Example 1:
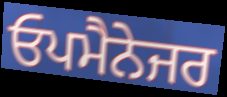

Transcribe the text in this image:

ਓਪਮੈਨੇਜਰ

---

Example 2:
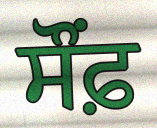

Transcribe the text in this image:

ਸੌਂਫ਼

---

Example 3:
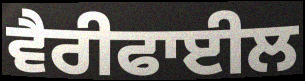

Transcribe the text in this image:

ਵੈਰੀਫਾਈਲ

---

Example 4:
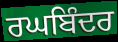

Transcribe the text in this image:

ਰਘਬਿੰਦਰ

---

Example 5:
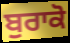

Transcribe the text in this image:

ਬੁਰਾਕੋ